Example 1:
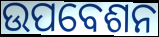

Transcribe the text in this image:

ଉପବେଶନ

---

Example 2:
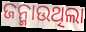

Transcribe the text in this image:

ଜନ୍ମାଉଥିଲା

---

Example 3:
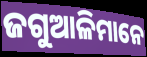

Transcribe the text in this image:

ଜଗୁଆଳିମାନେ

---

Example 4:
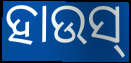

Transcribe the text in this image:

ହାଉସ୍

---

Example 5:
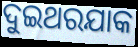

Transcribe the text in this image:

ଦୁଇଥରଯାକ